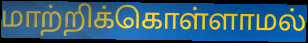
மாற்றிக்கொள்ளாமல்